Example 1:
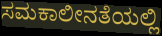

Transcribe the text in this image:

ಸಮಕಾಲೀನತೆಯಲ್ಲಿ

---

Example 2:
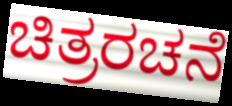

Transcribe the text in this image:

ಚಿತ್ರರಚನೆ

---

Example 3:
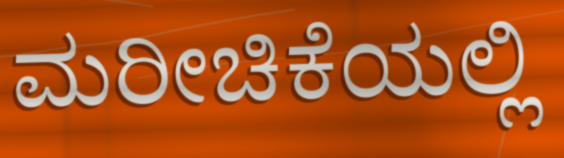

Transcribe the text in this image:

ಮರೀಚಿಕೆಯಲ್ಲಿ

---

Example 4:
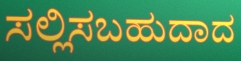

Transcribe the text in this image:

ಸಲ್ಲಿಸಬಹುದಾದ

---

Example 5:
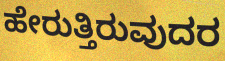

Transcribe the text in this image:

ಹೇರುತ್ತಿರುವುದರ